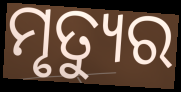
ମୃତ୍ୟୁର